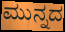
ಮುನ್ನದ